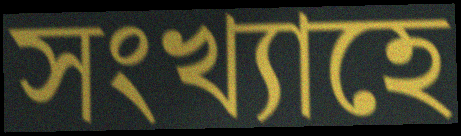
সংখ্যাহে